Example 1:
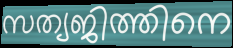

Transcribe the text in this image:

സത്യജിത്തിനെ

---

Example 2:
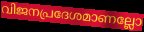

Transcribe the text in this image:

വിജനപ്രദേശമാണല്ലോ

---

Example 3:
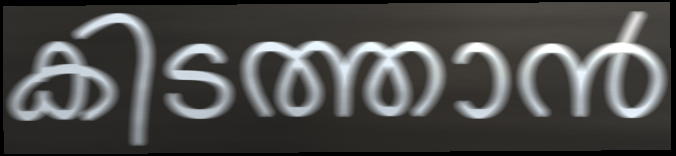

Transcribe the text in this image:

കിടത്താൻ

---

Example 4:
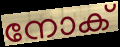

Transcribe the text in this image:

നോക്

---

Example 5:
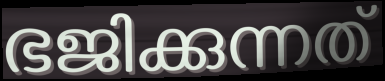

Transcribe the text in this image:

ഭജിക്കുന്നത്